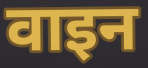
वाइन